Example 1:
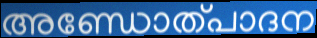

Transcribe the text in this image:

അണ്ഡോത്പാദന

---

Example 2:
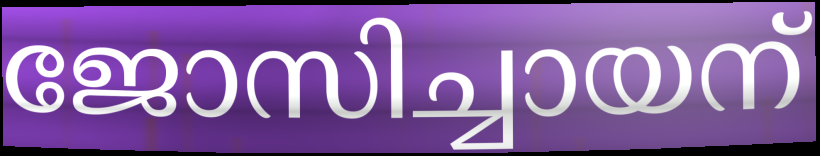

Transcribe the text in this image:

ജോസിച്ചായന്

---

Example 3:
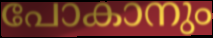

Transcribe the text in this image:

പോകാനും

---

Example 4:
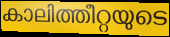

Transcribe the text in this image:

കാലിത്തീറ്റയുടെ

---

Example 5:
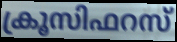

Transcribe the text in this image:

ക്രൂസിഫറസ്